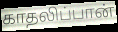
காதலிப்பான்